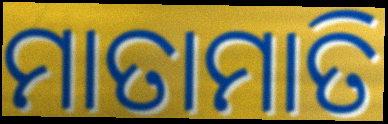
ମାତାମାତି